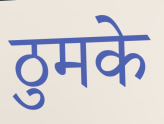
ठुमके